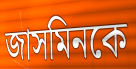
জাসমিনকে